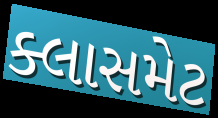
ક્લાસમેટ